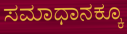
ಸಮಾಧಾನಕ್ಕೂ